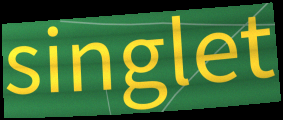
singlet